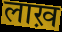
लाख़